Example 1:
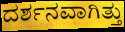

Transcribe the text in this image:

ದರ್ಶನವಾಗಿತ್ತು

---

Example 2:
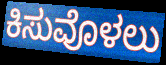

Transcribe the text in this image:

ಕಿಸುವೊಳಲು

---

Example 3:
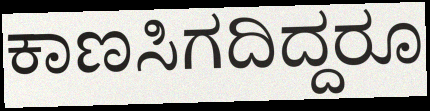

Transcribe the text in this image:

ಕಾಣಸಿಗದಿದ್ದರೂ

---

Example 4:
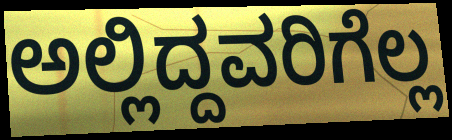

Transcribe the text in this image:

ಅಲ್ಲಿದ್ದವರಿಗೆಲ್ಲ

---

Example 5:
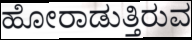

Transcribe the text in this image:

ಹೋರಾಡುತ್ತಿರುವ